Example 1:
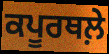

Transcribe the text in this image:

ਕਪੂਰਥਲ਼ੇ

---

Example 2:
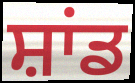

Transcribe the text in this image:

ਸ਼ਾਂਡ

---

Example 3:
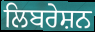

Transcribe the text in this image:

ਲਿਬਰੇਸ਼ਨ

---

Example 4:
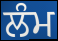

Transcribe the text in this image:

ਲੰਮ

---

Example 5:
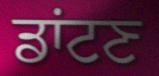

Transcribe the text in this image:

ਡਾਂਟਣ